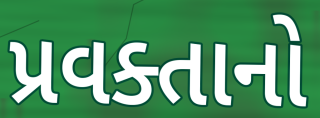
પ્રવક્તાનો